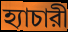
হ্যাচারী